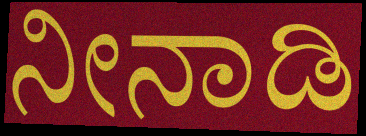
ನೀನಾಡಿ